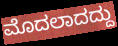
ಮೊದಲಾದದ್ದು